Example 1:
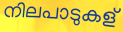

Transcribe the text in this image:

നിലപാടുകള്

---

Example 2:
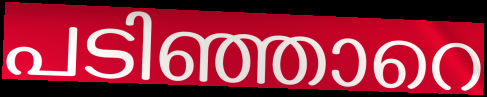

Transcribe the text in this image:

പടിഞ്ഞാറെ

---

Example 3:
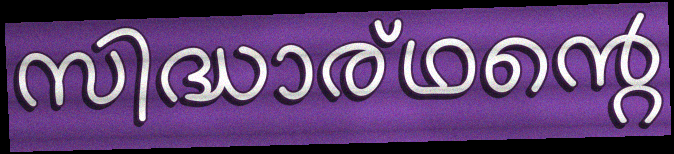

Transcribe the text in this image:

സിദ്ധാര്ഥന്റെ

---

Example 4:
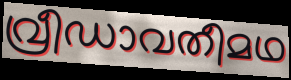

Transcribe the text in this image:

വ്രീഡാവതീമഥ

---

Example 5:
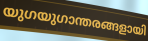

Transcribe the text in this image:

യുഗയുഗാന്തരങ്ങളായി